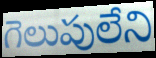
గెలుపులేని